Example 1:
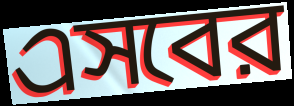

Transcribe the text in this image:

এসবের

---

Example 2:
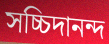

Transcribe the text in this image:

সচ্চিদানন্দ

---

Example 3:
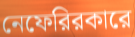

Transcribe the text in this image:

নেফেরিরকারে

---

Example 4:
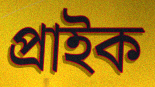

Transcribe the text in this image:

প্রাইক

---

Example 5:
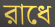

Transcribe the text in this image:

রাধে